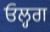
ਓਲ੍ਹਗ